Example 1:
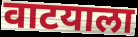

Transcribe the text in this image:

वाटयाला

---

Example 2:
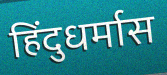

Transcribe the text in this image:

हिंदुधर्मास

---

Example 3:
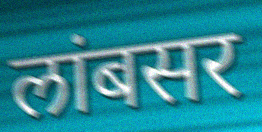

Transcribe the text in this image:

लांबसर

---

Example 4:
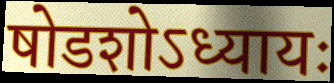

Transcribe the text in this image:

षोडशोऽध्यायः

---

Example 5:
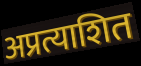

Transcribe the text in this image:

अप्रत्याशित